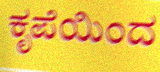
ಕೃಪೆಯಿಂದ